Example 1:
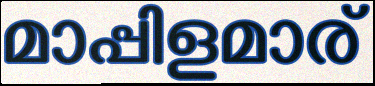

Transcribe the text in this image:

മാപ്പിളമാര്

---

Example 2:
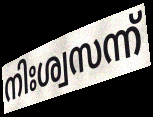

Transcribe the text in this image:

നിഃശ്വസന്ന്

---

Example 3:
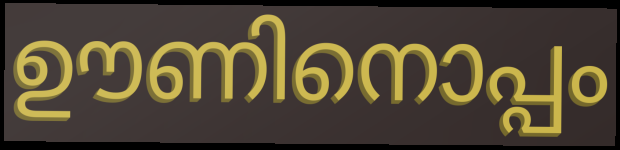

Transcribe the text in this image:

ഊണിനൊപ്പം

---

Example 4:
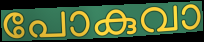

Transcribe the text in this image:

പോകുവാ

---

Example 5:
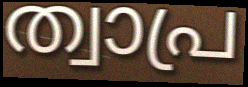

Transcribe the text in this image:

ത്വാപ്ര